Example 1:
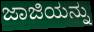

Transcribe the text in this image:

ಜಾಜಿಯನ್ನು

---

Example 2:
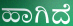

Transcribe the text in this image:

ಹಾಗಿದೆ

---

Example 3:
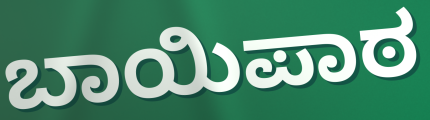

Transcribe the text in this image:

ಬಾಯಿಪಾಠ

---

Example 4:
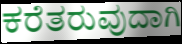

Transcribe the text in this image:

ಕರೆತರುವುದಾಗಿ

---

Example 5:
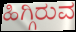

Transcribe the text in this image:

ಹಿಗ್ಗಿರುವ